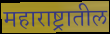
महाराष्ट्रातील